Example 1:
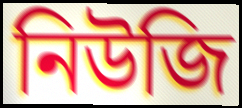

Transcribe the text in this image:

নিউজি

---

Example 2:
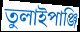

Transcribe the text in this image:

তুলাইপাঞ্জি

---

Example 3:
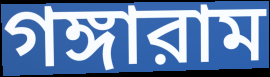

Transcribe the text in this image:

গঙ্গারাম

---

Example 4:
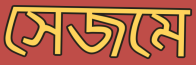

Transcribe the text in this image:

সেজমে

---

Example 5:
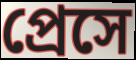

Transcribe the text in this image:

প্রেসে